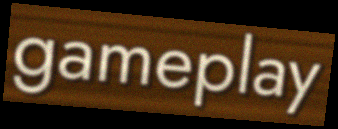
gameplay